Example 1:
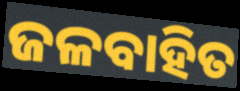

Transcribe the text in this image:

ଜଳବାହିତ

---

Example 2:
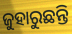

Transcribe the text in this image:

ଜୁହାରୁଛନ୍ତି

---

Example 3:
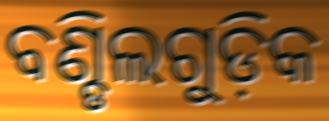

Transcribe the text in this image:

ବଣ୍ଡିଲଗୁଡ଼ିକ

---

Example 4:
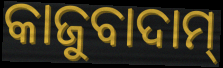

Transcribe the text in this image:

କାଜୁବାଦାମ୍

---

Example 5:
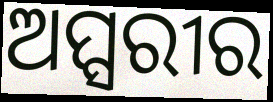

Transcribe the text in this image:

ଅପ୍ସରୀର